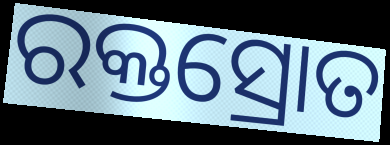
ରକ୍ତସ୍ରୋତ